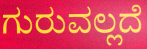
ಗುರುವಲ್ಲದೆ